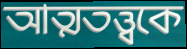
আত্মতত্ত্বকে